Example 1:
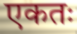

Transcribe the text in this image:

एकतः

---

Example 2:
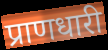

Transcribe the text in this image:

प्राणधारी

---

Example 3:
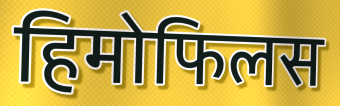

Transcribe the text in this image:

हिमोफिलस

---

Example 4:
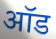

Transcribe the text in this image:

ऑड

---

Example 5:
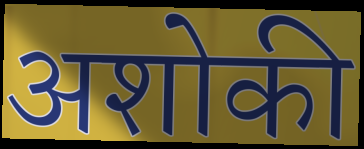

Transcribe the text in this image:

अशोकी